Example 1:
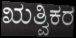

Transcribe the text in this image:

ಋತ್ವಿಕರ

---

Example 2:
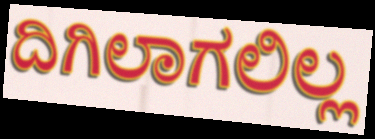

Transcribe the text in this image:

ದಿಗಿಲಾಗಲಿಲ್ಲ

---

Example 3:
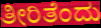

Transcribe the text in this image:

ತೀರಿತೆಂದು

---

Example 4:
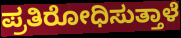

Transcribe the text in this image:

ಪ್ರತಿರೋಧಿಸುತ್ತಾಳೆ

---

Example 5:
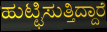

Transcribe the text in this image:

ಹುಟ್ಟಿಸುತ್ತಿದ್ದಾರೆ